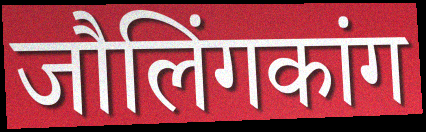
जौलिंगकांग